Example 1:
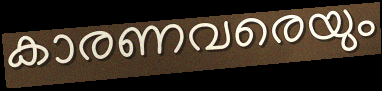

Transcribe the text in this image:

കാരണവരെയും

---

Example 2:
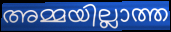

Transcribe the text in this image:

അമ്മയില്ലാത്ത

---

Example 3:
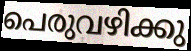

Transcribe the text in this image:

പെരുവഴിക്കു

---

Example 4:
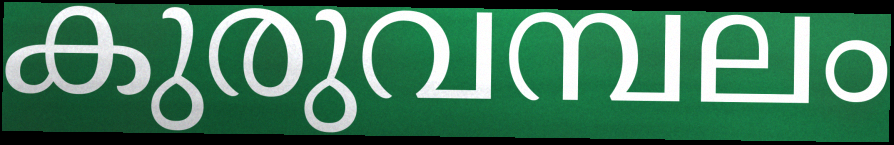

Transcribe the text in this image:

കുരുവമ്പലം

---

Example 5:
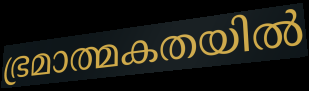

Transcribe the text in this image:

ഭ്രമാത്മകതയിൽ